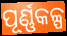
ପୂର୍ଣ୍ଣକଳ୍ପ